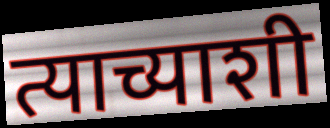
त्याच्याशी